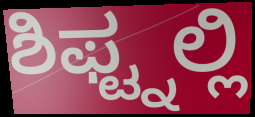
ಶಿಫ್ಟ್ನಲ್ಲಿ